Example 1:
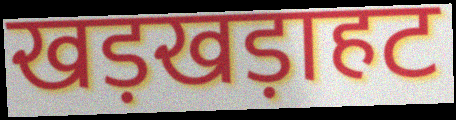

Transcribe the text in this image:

खड़खड़ाहट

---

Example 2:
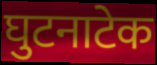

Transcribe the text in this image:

घुटनाटेक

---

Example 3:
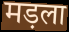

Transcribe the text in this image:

मड़ला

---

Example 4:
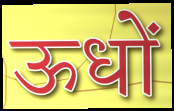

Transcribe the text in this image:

ऊधों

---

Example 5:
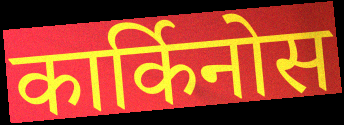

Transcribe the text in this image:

कार्किनोस